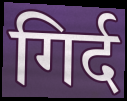
गिर्द